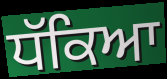
ਧੱਕਿਆ